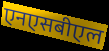
एनएसबीएल